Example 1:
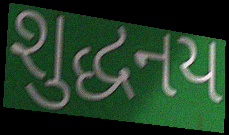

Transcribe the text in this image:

શુદ્ધનય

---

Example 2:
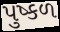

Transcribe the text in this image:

પુષ્કળ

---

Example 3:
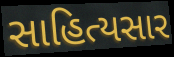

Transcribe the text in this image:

સાહિત્યસાર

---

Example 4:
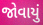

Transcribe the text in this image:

જોવાયું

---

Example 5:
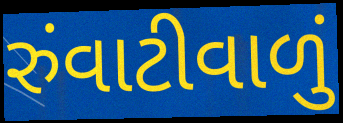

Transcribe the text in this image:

રુંવાટીવાળું